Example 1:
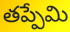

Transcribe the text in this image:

తప్పేమి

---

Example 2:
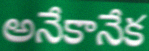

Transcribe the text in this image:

అనేకానేక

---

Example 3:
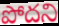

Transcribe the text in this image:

పోదని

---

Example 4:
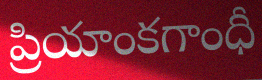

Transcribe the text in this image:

ప్రియాంకగాంధీ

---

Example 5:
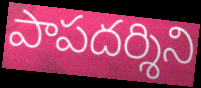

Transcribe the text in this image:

పాపదర్శిని